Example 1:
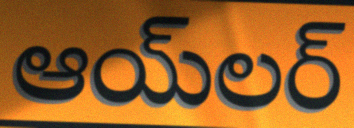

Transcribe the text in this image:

ఆయ్‌లర్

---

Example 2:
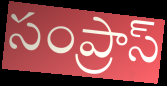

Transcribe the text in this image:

సంప్రాస్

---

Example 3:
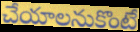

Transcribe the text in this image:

చేయాలనుకొంటే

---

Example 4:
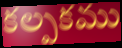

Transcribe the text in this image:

కల్పకము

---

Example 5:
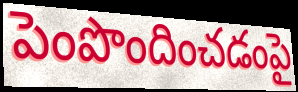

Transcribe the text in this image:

పెంపొందించడంపై